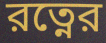
রত্নের